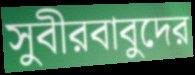
সুবীরবাবুদের